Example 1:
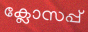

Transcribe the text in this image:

ക്ലോസപ്പ്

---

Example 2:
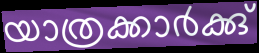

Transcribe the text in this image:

യാത്രക്കാർക്കു്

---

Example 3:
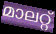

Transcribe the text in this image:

മാലറ്റ്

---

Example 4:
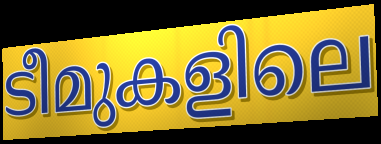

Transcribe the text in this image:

ടീമുകളിലെ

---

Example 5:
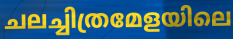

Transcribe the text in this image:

ചലച്ചിത്രമേളയിലെ